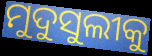
ମୁଦୁସୁଲୀକୁ